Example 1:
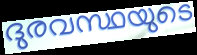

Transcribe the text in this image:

ദുരവസ്ഥയുടെ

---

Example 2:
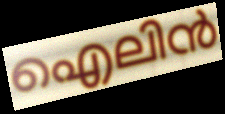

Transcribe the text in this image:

ഐലിൻ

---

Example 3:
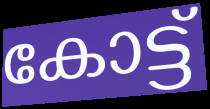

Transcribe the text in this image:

കോട്ട്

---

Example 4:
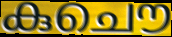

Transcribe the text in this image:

കുചൌ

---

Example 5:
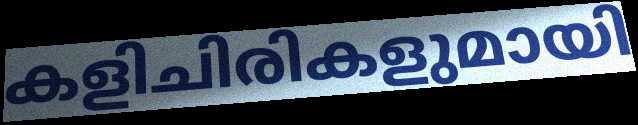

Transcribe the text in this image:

കളിചിരികളുമായി